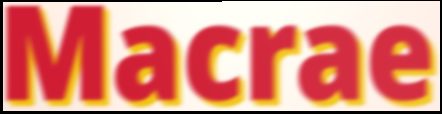
Macrae